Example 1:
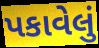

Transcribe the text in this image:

પકાવેલું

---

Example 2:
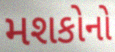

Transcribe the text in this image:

મશકોનો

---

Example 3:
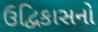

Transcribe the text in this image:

ઉદ્વિકાસનો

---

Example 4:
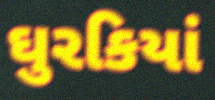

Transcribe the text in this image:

ઘુરકિયાં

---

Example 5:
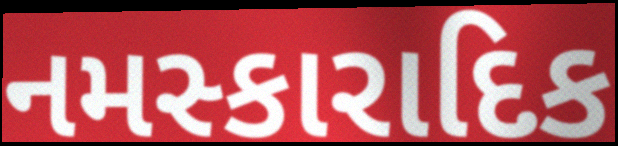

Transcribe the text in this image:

નમસ્કારાદિક